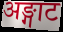
अङ्गाट